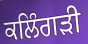
ਕਲਿੰਗੜੀ